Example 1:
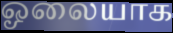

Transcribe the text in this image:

ஓலையாக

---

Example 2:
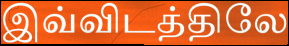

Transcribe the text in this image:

இவ்விடத்திலே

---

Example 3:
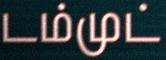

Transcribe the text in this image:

டம்முட்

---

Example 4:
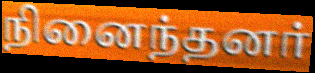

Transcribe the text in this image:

நினைந்தனர்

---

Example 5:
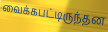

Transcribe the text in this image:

வைக்கபட்டிருந்தன